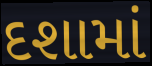
દશામાં